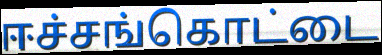
ஈச்சங்கொட்டை